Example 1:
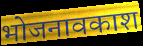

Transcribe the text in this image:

भोजनावकाश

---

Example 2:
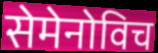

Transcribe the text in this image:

सेमेनोविच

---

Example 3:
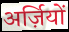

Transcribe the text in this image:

अर्ज़ियों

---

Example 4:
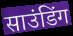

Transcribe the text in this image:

साउंडिंग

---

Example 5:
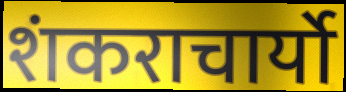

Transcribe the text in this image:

शंकराचार्यो